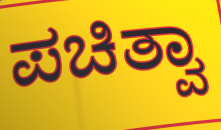
ಪಚಿತ್ವಾ